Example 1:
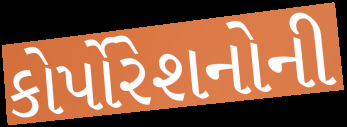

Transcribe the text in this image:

કોર્પોરેશનોની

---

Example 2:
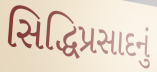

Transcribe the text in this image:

સિદ્ધિપ્રસાદનું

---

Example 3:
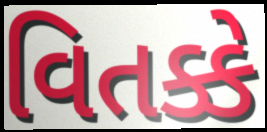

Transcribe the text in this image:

વિતક્કે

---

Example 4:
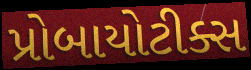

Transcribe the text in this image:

પ્રોબાયોટીક્સ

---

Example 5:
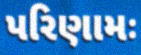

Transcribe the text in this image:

પરિણામઃ